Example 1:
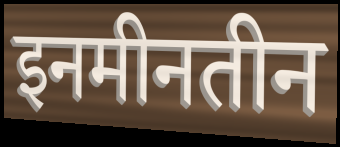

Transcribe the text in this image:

इनमीनतीन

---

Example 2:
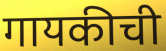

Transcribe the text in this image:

गायकीची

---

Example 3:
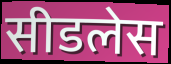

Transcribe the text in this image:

सीडलेस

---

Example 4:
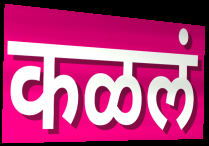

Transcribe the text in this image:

कळलं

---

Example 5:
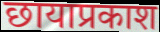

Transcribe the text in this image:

छायाप्रकाश